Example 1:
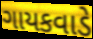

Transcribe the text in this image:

ગાયકવાડે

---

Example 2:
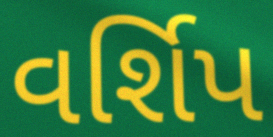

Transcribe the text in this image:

વર્શિપ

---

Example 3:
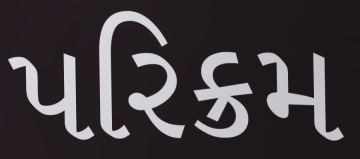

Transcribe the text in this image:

પરિક્રમ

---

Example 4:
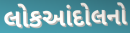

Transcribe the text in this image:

લોકઆંદોલનો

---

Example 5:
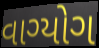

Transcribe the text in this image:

વાગ્યોગ